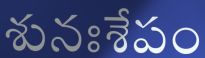
శునఃశేపం